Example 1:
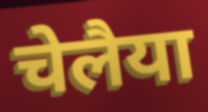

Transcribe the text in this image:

चेलैया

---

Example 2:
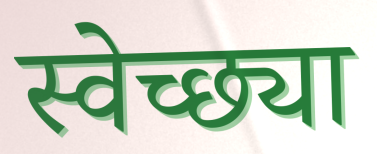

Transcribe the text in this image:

स्वेच्छ्या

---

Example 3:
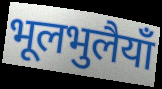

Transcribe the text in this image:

भूलभुलैयाँ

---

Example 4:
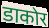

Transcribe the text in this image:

डाकोर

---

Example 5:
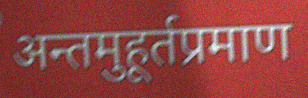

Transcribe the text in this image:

अन्तमुहूर्तप्रमाण